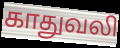
காதுவலி